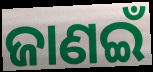
ଜାଣଇଁ